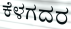
ಕೆಳಗದರ